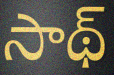
సాథ్